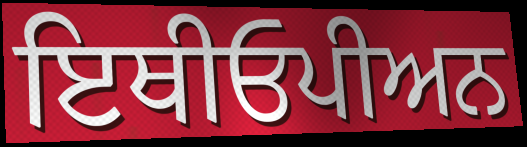
ਇਥੀਓਪੀਅਨ